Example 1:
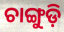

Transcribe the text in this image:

ଚାଙ୍ଗୁଡ଼ି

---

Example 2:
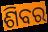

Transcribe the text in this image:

ଶିବର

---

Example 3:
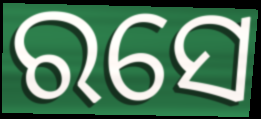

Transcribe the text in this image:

ରସେ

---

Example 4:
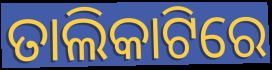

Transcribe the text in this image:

ତାଲିକାଟିରେ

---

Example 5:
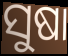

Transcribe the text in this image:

ସୁଷା